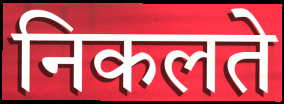
निकलते